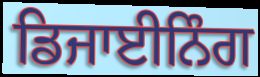
ਡਿਜਾਈਨਿੰਗ